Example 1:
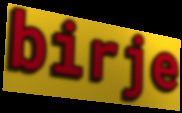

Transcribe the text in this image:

birje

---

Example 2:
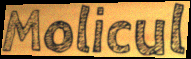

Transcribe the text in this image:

Molicul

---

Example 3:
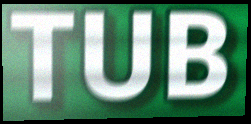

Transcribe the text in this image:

TUB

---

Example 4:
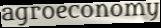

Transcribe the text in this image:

agroeconomy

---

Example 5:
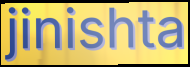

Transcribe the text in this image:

jinishta